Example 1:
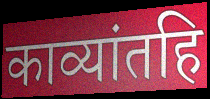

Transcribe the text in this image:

काव्यांतहि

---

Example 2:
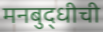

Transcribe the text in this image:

मनबुद्धीची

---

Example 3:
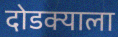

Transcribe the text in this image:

दोडक्याला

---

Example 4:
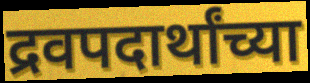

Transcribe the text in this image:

द्रवपदार्थांच्या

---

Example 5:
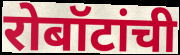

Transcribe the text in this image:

रोबॉटांची